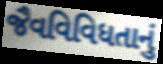
જૈવવિવિધતાનું